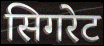
सिगरेट